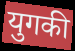
युगकी